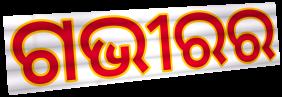
ଗଭୀରର